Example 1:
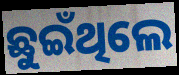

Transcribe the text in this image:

ଛୁଇଁଥିଲେ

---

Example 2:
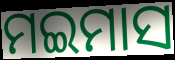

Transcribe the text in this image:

ମଇମାସ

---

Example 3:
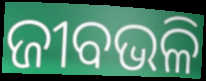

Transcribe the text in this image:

ଜୀବଭଳି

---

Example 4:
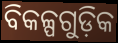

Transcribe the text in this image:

ବିକଳ୍ପଗୁଡ଼ିକ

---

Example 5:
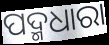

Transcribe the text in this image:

ପଦ୍ମଧାରା